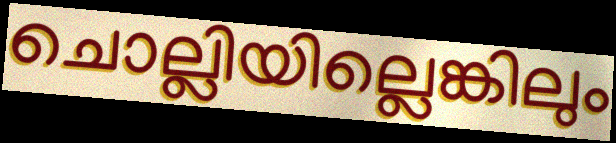
ചൊല്ലിയില്ലെങ്കിലും